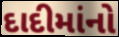
દાદીમાંનો